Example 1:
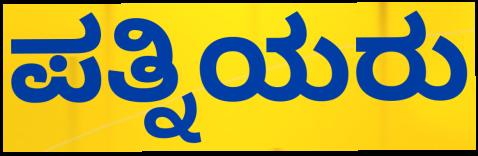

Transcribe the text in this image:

ಪತ್ನಿಯರು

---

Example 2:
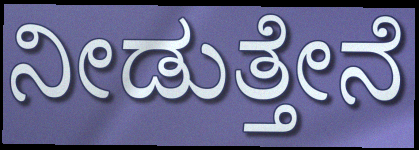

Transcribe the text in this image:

ನೀಡುತ್ತೇನೆ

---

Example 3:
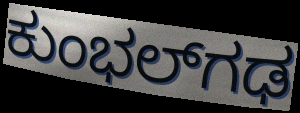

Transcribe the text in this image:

ಕುಂಭಲ್‌ಗಢ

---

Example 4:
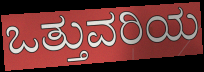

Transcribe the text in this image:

ಒತ್ತುವರಿಯ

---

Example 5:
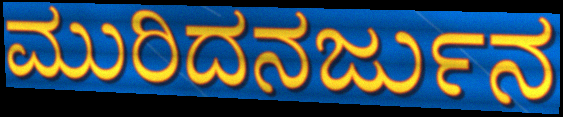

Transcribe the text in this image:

ಮುರಿದನರ್ಜುನ